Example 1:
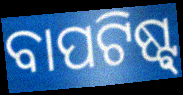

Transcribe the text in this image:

ବାପଟିଷ୍ଟ୍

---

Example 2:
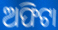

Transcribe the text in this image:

ଅଫିଟା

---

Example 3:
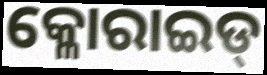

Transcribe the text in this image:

କ୍ଳୋରାଇଡ୍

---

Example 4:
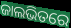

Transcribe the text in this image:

ଜାଲଭିତରେ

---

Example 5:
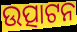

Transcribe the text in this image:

ଉତ୍ପାଟନ